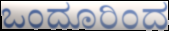
ಒಂದೂರಿಂದ